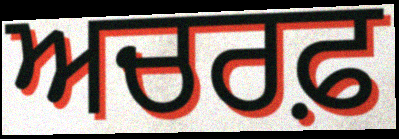
ਅਚਰਫ਼